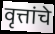
वृत्तांचे